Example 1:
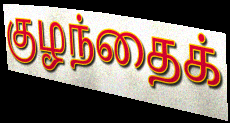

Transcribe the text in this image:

குழந்தைக்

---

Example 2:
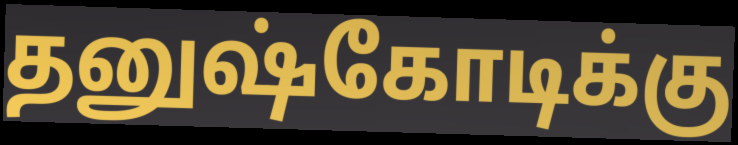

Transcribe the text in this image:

தனுஷ்கோடிக்கு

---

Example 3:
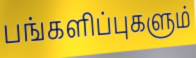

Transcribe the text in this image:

பங்களிப்புகளும்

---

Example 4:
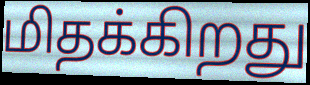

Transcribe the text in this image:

மிதக்கிறது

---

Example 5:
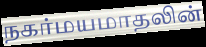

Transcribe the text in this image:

நகர்மயமாதலின்